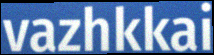
vazhkkai